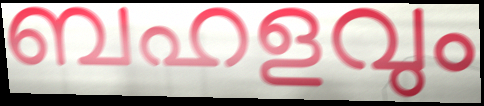
ബഹളവും